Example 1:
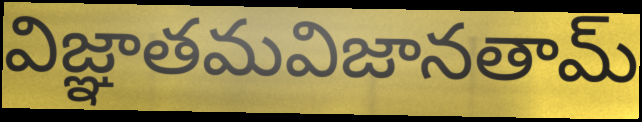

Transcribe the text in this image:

విజ్ఞాతమవిజానతామ్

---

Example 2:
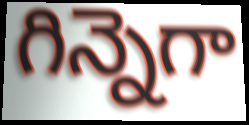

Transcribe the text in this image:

గిన్నెగా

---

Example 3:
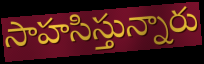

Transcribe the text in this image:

సాహసిస్తున్నారు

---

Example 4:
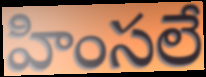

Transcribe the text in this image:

హింసలే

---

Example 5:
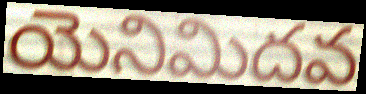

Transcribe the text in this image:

యెనిమిదవ